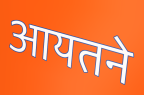
आयतने